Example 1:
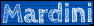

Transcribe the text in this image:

Mardini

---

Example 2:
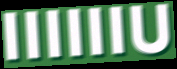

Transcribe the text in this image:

IIIIIIU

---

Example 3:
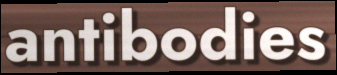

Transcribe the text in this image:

antibodies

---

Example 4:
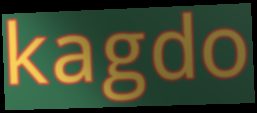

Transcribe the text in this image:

kagdo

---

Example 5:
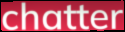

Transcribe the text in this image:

chatter